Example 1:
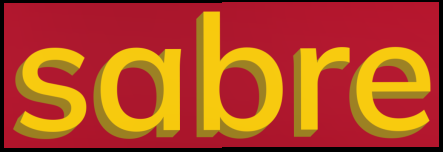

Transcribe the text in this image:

sabre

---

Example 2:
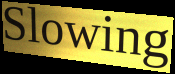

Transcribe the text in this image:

Slowing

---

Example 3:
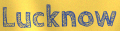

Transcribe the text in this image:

Lucknow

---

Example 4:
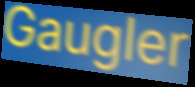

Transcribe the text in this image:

Gaugler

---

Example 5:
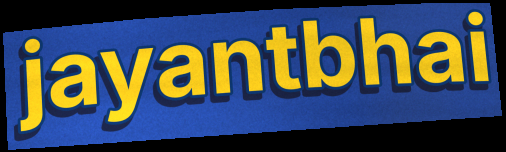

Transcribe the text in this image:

jayantbhai